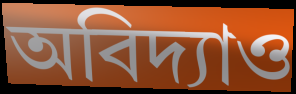
অবিদ্যাও